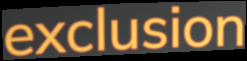
exclusion